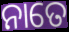
ନାତେ